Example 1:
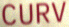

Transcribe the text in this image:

CURV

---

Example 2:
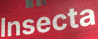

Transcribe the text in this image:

Insecta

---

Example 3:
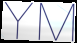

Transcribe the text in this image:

YM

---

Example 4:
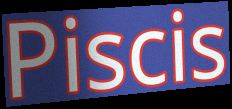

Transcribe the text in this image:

Piscis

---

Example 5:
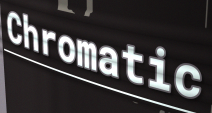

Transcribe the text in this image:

Chromatic